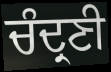
ਚੰਦ੍ਰਣੀ